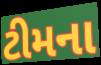
ટીમના